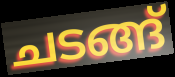
ചടങ്ങ്